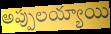
అప్పులయ్యాయి